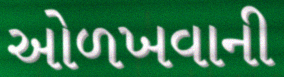
ઓળખવાની